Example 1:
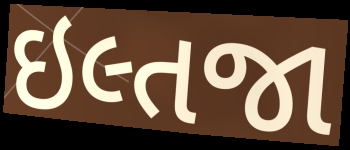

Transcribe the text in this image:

ઇલ્તજા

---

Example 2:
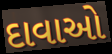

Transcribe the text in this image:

દાવાઓ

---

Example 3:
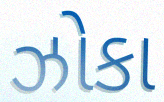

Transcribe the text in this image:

ઝોકા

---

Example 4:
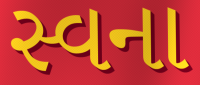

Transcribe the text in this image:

સ્વના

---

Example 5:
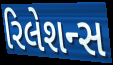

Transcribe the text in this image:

રિલેશન્સ